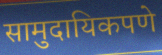
सामुदायिकपणे